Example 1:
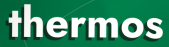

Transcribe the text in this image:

thermos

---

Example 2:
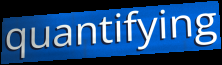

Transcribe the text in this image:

quantifying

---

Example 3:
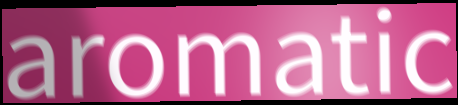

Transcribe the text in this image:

aromatic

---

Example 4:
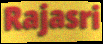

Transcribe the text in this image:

Rajasri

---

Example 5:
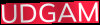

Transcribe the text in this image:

UDGAM